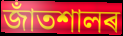
জাঁতশালৰ